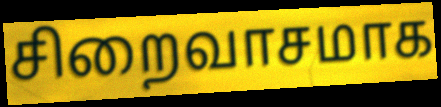
சிறைவாசமாக